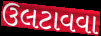
ઉલટાવવા